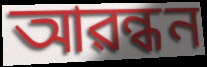
আৱন্ধন